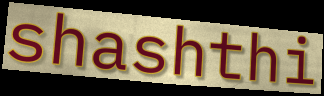
shashthi